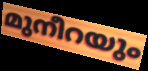
മുനീറയും